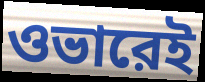
ওভারেই